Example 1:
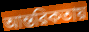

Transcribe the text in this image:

আন্তরিকতায়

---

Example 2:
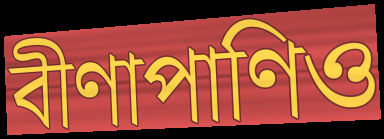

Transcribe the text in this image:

বীণাপাণিও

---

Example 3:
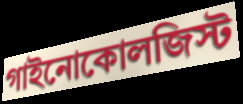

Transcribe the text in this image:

গাইনোকোলজিস্ট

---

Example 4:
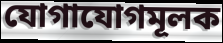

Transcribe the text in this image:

যোগাযোগমূলক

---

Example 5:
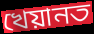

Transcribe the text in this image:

খেয়ানত